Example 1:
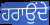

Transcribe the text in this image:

ਹਰਾਉਂਦੇ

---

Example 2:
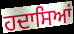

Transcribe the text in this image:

ਹਦਾਸਿਆਂ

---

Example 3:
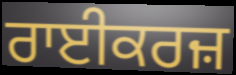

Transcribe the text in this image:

ਰਾਈਕਰਜ਼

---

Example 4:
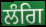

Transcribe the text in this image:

ਲੰਗਿ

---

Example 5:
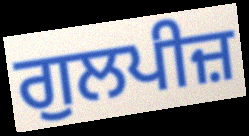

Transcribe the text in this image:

ਗੁਲਪੀਜ਼